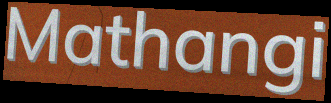
Mathangi